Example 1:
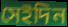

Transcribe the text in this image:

সেইদিন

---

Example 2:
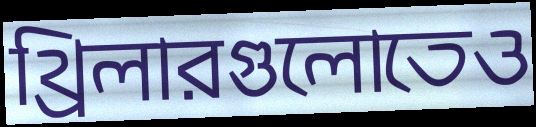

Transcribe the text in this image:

থ্রিলারগুলোতেও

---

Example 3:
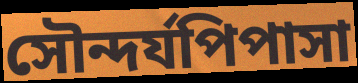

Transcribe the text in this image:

সৌন্দর্যপিপাসা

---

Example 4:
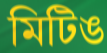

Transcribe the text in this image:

মিটিঙ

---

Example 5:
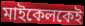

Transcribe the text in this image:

মাইকেলকেই